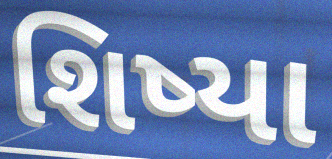
શિષ્યા